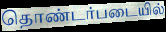
தொண்டர்படையில்